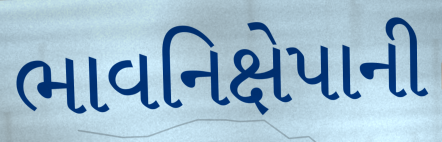
ભાવનિક્ષેપાની